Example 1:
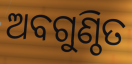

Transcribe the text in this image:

ଅବଗୁଣ୍ଠିତ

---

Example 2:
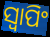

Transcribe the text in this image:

ସ୍ବାପିଂ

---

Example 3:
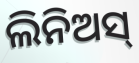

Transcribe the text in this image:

ଲିନିଅସ୍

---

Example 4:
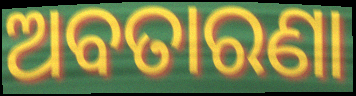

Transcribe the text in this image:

ଅବତାରଣା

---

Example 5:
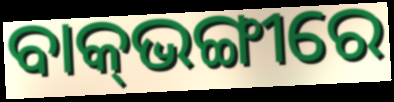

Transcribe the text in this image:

ବାକ୍‍ଭଙ୍ଗୀରେ